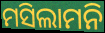
ମସିଲାମନି